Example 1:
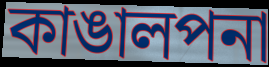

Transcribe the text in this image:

কাঙালপনা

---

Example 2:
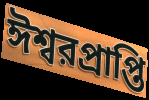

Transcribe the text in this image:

ঈশ্বরপ্রাপ্তি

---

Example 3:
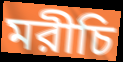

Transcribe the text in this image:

মরীচি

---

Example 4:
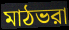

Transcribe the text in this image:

মাঠভরা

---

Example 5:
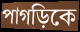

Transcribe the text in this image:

পাগড়িকে